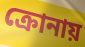
ক্রোনায়